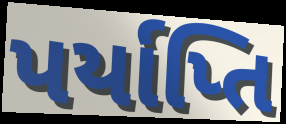
પર્યાપ્તિ